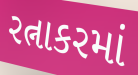
રત્નાકરમાં